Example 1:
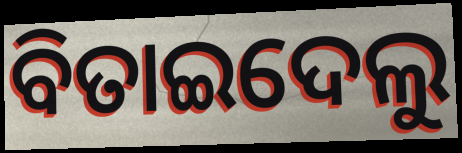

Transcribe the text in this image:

ବିତାଇଦେଲୁ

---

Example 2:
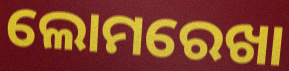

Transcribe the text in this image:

ଲୋମରେଖା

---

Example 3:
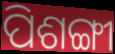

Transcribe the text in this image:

ପିଶଙ୍ଗୀ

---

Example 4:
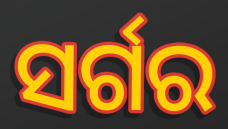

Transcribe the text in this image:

ସର୍ଗର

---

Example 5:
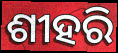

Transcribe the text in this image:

ଶୀହରି